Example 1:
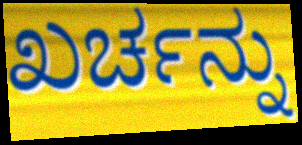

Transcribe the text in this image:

ಖರ್ಚನ್ನು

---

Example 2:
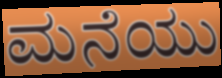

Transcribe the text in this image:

ಮನೆಯು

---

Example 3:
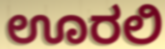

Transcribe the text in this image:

ಊರಲಿ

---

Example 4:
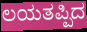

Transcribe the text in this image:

ಲಯತಪ್ಪಿದ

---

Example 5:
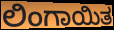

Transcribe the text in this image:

ಲಿಂಗಾಯಿತ